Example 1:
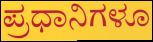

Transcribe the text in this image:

ಪ್ರಧಾನಿಗಳೂ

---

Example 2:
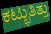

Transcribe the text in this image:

ಕಟ್ಟುತಿತ್ತು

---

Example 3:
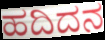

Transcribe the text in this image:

ಹದಿದನ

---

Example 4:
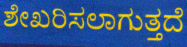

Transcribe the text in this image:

ಶೇಖರಿಸಲಾಗುತ್ತದೆ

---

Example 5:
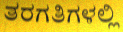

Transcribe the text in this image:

ತರಗತಿಗಳಲ್ಲಿ